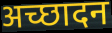
अच्छादन